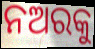
ନଅରକୁ